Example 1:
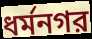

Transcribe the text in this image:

ধর্মনগর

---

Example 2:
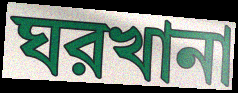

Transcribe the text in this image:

ঘরখানা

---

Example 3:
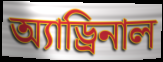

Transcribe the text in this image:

অ্যাড্রিনাল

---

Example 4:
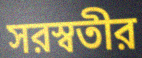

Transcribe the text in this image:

সরস্বতীর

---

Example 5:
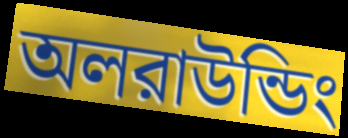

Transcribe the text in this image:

অলরাউন্ডিং